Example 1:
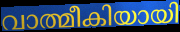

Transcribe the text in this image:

വാത്മീകിയായി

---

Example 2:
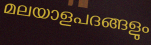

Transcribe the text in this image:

മലയാളപദങ്ങളും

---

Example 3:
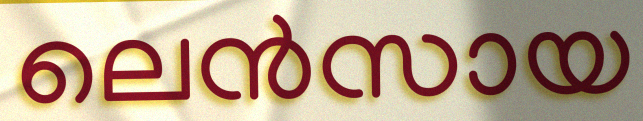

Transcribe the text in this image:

ലെൻസായ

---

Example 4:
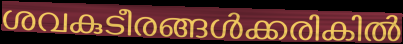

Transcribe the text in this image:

ശവകുടീരങ്ങൾക്കരികിൽ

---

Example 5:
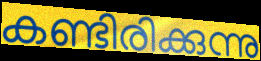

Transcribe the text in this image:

കണ്ടിരിക്കുന്നു